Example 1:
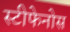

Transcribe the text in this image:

स्टीफेनोस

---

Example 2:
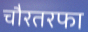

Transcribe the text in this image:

चौरतरफा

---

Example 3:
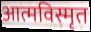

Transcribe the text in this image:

आत्मविस्मृत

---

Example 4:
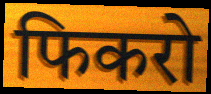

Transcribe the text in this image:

फिकरो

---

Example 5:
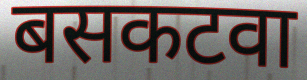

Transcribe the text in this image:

बसकटवा